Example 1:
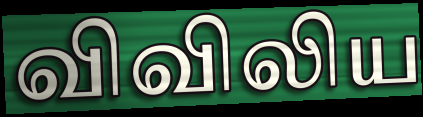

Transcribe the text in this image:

விவிலிய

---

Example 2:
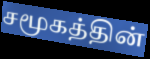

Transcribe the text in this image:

சமூகத்தின்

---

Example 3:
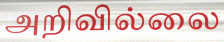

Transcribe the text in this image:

அறிவில்லை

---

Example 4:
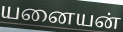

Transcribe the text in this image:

யனையன்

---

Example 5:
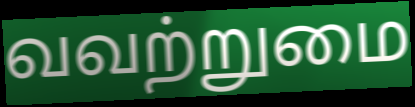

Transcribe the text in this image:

வவற்றுமை